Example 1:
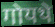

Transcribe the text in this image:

गोयथे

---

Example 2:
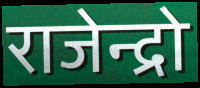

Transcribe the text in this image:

राजेन्द्रो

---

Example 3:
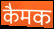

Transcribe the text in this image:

कैमक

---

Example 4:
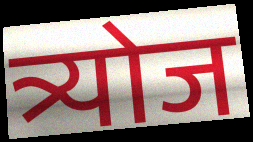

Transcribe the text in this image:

त्र्योज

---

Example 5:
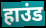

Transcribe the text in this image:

हाउंड